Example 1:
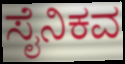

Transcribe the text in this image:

ಸೈನಿಕವ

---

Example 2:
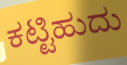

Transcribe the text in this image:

ಕಟ್ಟಿಹುದು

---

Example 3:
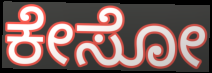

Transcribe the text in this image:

ಕೇಸೋ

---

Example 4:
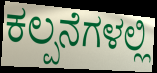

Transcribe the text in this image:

ಕಲ್ಪನೆಗಳಲ್ಲಿ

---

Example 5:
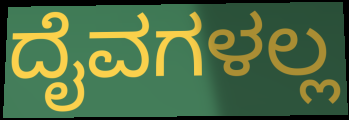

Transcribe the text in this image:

ದೈವಗಳಲ್ಲ